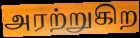
அரற்றுகிற